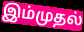
இம்முதல்